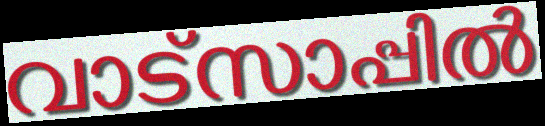
വാട്സാപ്പിൽ